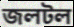
জলটল